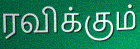
ரவிக்கும்